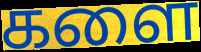
களை